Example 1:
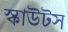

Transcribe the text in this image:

স্কাউটস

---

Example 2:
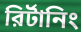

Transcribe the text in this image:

রির্টানিং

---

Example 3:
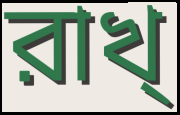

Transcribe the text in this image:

রাখ্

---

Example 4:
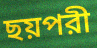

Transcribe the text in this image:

ছয়পরী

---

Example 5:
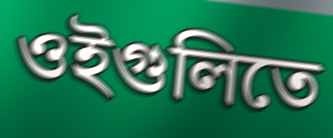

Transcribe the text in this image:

ওইগুলিতে